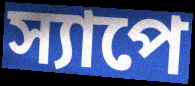
স্যাপে